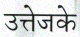
उत्तेजके